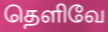
தெளிவே